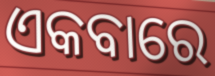
ଏକବାରେ